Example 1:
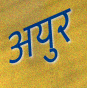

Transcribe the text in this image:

अयुर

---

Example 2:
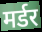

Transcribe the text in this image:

मर्डर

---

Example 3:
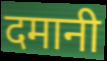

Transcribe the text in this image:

दमानी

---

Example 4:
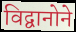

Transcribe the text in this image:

विद्वानोने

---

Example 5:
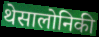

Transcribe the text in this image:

थेसालोनिकी